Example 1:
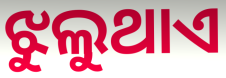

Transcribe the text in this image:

ଝୁଲୁଥାଏ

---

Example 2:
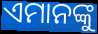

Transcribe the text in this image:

ଏମାନଙ୍କୁ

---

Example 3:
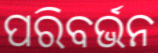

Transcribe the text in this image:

ପରିବର୍ଭନ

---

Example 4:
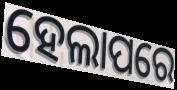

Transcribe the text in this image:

ହେଲାପରେ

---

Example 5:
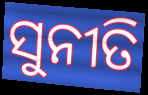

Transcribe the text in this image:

ସୁନୀତି